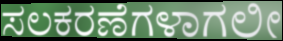
ಸಲಕರಣೆಗಳಾಗಲೀ